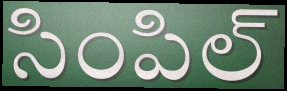
సింపిల్